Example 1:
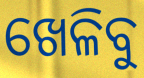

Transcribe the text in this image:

ଖେଳିବୁ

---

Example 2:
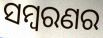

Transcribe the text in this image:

ସମ୍ବରଣର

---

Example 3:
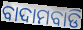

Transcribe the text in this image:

ବାଦାମବାଡି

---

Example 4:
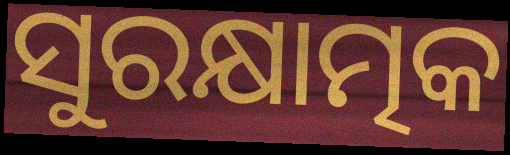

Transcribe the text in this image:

ସୁରକ୍ଷାତ୍ମକ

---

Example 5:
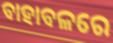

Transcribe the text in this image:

ବାହାବଳରେ